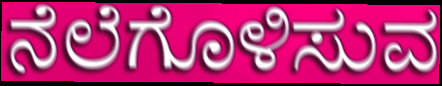
ನೆಲೆಗೊಳಿಸುವ